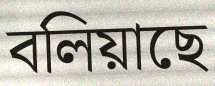
বলিয়াছে